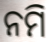
ନମି